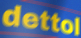
dettol